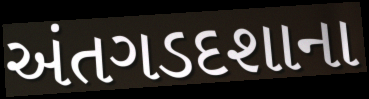
અંતગડદશાના